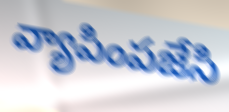
వ్యాపింపజేసి